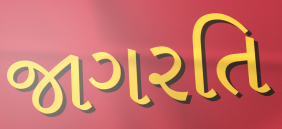
જાગરતિ